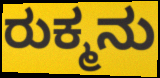
ರುಕ್ಮನು